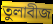
তুলাবীজ